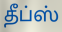
தீப்ஸ்